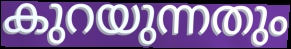
കുറയുന്നതും